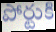
పోర్టుకి